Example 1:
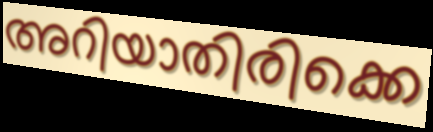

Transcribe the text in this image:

അറിയാതിരിക്കെ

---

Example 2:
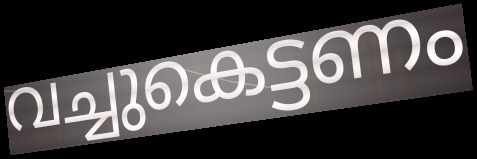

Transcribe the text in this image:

വച്ചുകെട്ടണം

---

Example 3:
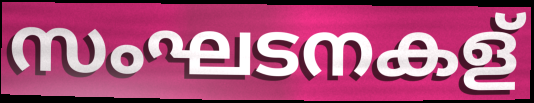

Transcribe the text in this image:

സംഘടനകള്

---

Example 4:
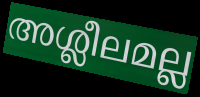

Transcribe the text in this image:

അശ്ലീലമല്ല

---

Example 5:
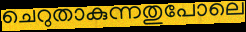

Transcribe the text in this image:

ചെറുതാകുന്നതുപോലെ